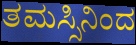
ತಮಸ್ಸಿನಿಂದ